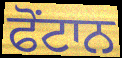
ਫੋਂਟਾਨ